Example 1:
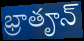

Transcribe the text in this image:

భ్రాతౄన్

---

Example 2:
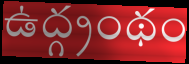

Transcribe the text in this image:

ఉద్గ్రంథం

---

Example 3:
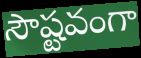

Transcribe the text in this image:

సౌష్టవంగా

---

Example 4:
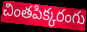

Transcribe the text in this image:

చింతపిక్కరంగు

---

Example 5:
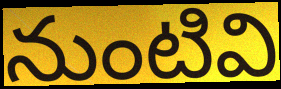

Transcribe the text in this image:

నుంటివి